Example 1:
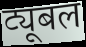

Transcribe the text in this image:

ट्यूबल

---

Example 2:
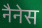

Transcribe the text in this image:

नैनेस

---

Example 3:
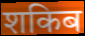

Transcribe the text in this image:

शकिब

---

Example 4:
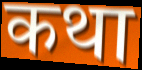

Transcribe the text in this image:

कथा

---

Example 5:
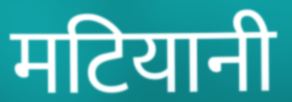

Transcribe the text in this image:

मटियानी